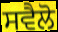
ਸਵੈਲੋ